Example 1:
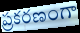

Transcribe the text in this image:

ప్రకరణంగా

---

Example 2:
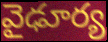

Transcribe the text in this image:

వైఢూర్య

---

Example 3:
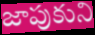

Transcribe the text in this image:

జాపుకుని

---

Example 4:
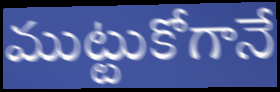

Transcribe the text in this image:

ముట్టుకోగానే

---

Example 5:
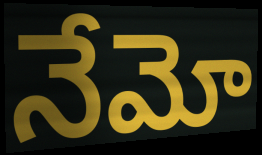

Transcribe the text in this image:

నేమో